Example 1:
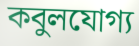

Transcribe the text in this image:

কবুলযোগ্য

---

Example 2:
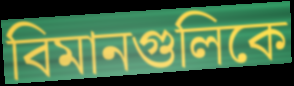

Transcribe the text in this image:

বিমানগুলিকে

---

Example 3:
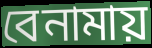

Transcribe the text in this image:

বেনামায়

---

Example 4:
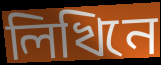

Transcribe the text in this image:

লিখিনে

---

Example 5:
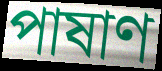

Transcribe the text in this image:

পাষাণ